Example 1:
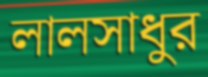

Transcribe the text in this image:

লালসাধুর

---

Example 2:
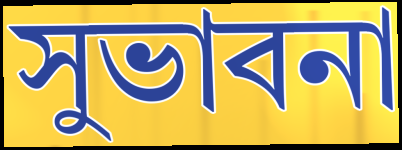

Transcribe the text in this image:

সুভাবনা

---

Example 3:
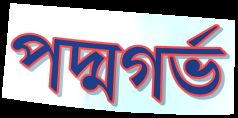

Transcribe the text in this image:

পদ্মগর্ভ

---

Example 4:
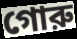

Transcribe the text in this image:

গোরু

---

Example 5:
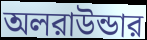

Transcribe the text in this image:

অলরাউন্ডার